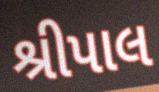
શ્રીપાલ